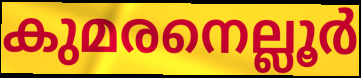
കുമരനെല്ലൂർ